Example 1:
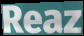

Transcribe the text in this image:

Reaz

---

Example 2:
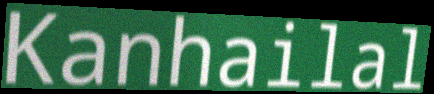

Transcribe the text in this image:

Kanhailal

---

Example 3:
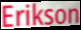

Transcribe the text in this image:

Erikson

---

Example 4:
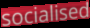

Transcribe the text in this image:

socialised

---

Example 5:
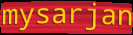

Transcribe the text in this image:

mysarjan